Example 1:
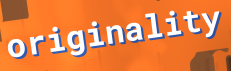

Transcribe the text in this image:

originality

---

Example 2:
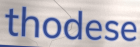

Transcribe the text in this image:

thodese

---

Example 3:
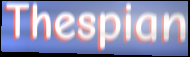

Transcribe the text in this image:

Thespian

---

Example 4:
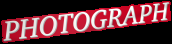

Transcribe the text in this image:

PHOTOGRAPH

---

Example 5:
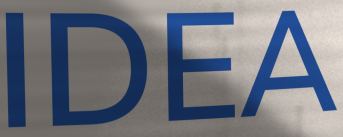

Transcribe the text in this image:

IDEA